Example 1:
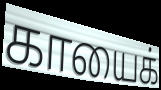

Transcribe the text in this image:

காயைக்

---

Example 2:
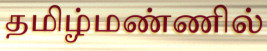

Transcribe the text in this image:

தமிழ்மண்ணில்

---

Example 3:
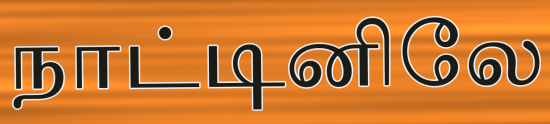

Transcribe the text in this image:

நாட்டினிலே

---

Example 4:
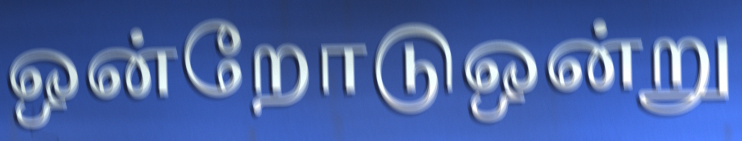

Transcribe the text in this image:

ஒன்றோடுஒன்று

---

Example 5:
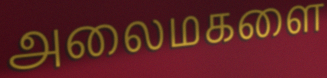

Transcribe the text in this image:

அலைமகளை